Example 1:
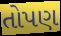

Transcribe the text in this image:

તોપણ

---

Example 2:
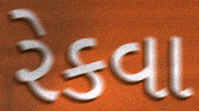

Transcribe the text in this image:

રેકવા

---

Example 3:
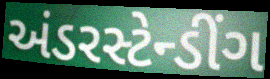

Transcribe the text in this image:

અંડરસ્ટેન્ડીંગ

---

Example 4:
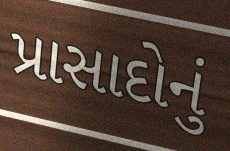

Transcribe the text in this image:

પ્રાસાદોનું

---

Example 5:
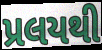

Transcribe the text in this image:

પ્રલયથી